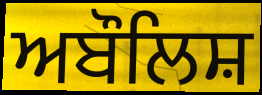
ਅਬੌਲਿਸ਼